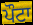
ਪੌਟਾ